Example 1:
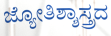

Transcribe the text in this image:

ಜ್ಯೋತಿಶ್ಶಾಸ್ತ್ರದ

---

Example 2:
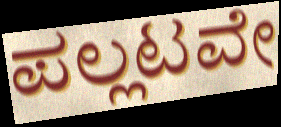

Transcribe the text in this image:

ಪಲ್ಲಟವೇ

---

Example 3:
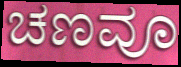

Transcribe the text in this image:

ಚಣವೂ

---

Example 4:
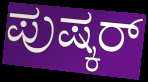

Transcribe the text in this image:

ಪುಷ್ಕರ್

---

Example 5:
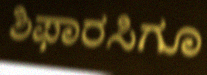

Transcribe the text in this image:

ಶಿಫಾರಸಿಗೂ